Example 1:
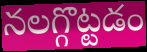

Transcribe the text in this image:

నలగ్గొట్టడం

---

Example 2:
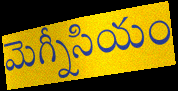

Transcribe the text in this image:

మెగ్నీసియం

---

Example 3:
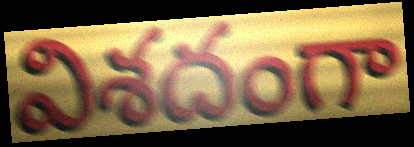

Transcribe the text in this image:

విశదంగా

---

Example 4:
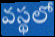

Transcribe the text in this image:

వస్థలో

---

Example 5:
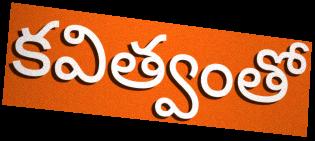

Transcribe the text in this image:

కవిత్వంతో